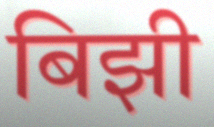
बिझी